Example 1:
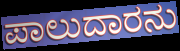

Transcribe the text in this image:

ಪಾಲುದಾರನು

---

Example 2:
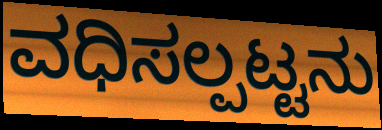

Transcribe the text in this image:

ವಧಿಸಲ್ಪಟ್ಟನು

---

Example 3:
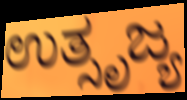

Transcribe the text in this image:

ಉತ್ಸೃಜ್ಯ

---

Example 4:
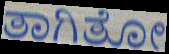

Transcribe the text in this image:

ತಾಗಿತೋ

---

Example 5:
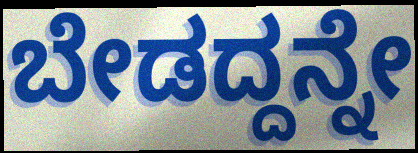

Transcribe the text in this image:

ಬೇಡದ್ದನ್ನೇ